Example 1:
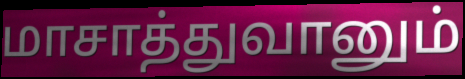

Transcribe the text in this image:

மாசாத்துவானும்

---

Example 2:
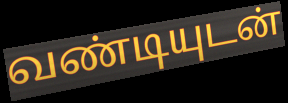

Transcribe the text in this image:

வண்டியுடன்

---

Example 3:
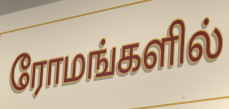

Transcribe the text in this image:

ரோமங்களில்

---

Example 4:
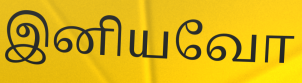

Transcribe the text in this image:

இனியவோ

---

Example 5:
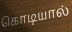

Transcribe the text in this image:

கொடியால்